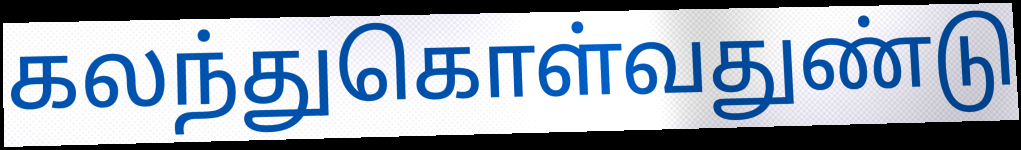
கலந்துகொள்வதுண்டு